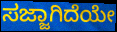
ಸಜ್ಜಾಗಿದೆಯೇ